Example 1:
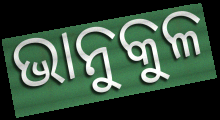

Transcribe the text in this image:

ଭାନୁକୁଳ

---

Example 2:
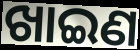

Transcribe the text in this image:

ଖାଇଣ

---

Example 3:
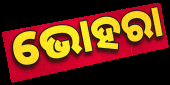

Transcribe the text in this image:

ଭୋହରା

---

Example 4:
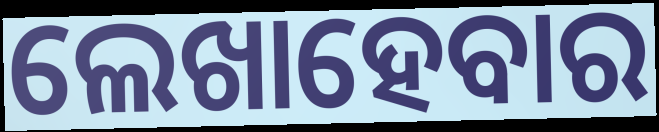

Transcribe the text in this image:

ଲେଖାହେବାର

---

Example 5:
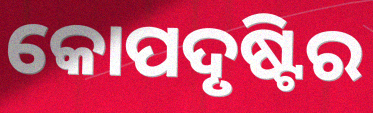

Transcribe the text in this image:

କୋପଦୃଷ୍ଟିର